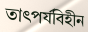
তাৎপর্যবিহীন